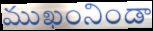
ముఖంనిండా